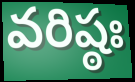
వరిష్ఠః